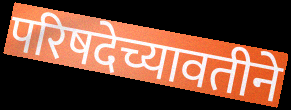
परिषदेच्यावतीने